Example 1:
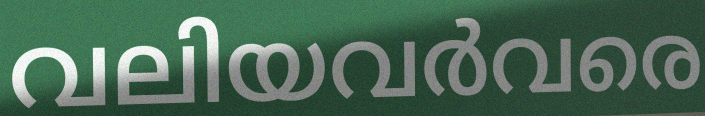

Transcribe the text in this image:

വലിയവർവരെ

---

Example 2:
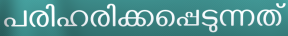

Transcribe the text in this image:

പരിഹരിക്കപ്പെടുന്നത്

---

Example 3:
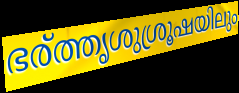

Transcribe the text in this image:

ഭര്ത്തൃശുശ്രൂഷയിലും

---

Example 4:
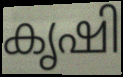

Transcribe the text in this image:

കൃഷി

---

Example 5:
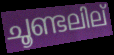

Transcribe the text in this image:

ചൂണ്ടലില്